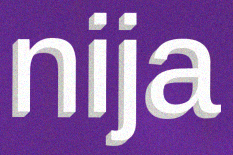
nija